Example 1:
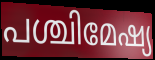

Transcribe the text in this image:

പശ്ചിമേഷ്യ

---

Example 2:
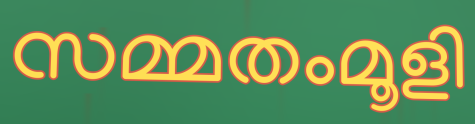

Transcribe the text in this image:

സമ്മതംമൂളി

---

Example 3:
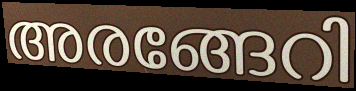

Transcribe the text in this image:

അരങ്ങേറി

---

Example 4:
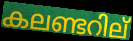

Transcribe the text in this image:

കലണ്ടറില്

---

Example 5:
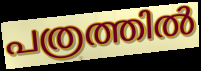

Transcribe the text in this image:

പത്രത്തിൽ